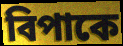
বিপাকে